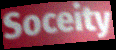
Soceity